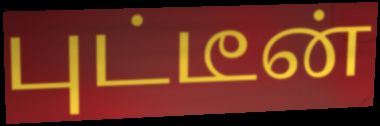
புட்டீன்